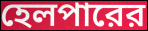
হেলপারের